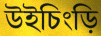
উইচিংড়ি